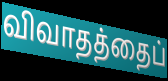
விவாதத்தைப்